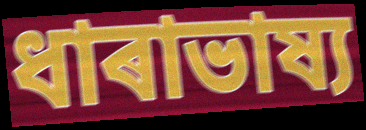
ধাৰাভাষ্য